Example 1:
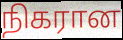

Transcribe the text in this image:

நிகரான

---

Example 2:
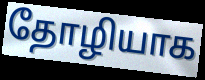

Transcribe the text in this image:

தோழியாக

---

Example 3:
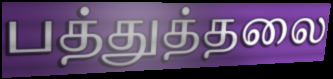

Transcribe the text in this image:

பத்துத்தலை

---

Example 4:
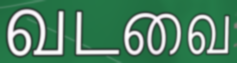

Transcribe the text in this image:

வடவை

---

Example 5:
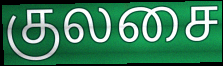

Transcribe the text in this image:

குலசை